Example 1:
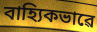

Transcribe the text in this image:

বাহ্যিকভাৱে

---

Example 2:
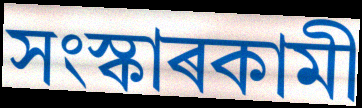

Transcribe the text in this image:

সংস্কাৰকামী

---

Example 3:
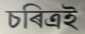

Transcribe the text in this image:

চৰিত্ৰই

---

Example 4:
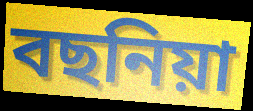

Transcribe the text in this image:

বছনিয়া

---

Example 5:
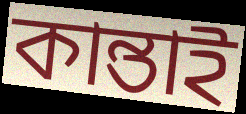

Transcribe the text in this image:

কান্তাই